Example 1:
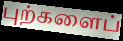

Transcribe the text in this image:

புற்களைப்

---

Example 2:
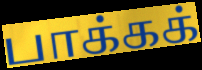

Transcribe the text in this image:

பாக்கக்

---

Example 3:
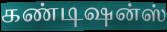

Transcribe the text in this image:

கண்டிஷன்ஸ்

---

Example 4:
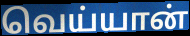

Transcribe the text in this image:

வெய்யான்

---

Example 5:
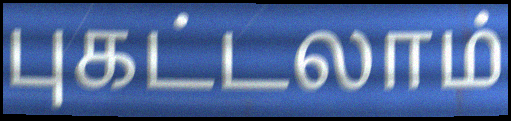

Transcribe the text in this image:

புகட்டலாம்